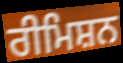
ਰੀਮਿਸ਼ਨ